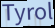
Tyrol